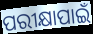
ପରୀକ୍ଷାପାଇଁ